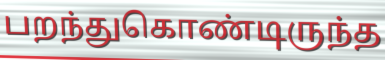
பறந்துகொண்டிருந்த